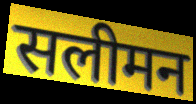
सलीमन